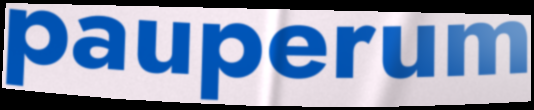
pauperum